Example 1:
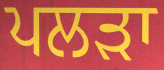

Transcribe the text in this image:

ਪਲੜਾ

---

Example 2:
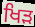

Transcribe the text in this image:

ਖਿੜ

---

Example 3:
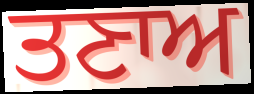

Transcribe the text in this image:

ਤਣਾਅ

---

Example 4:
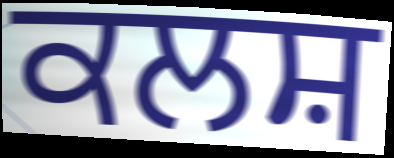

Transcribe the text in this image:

ਕਲਸ਼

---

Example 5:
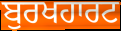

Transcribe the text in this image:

ਬੁਰਖਹਾਰਟ